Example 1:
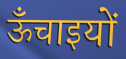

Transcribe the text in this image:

ऊँचाइयों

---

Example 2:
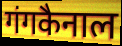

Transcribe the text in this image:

गंगकैनाल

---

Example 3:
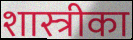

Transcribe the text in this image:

शास्त्रीका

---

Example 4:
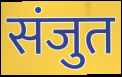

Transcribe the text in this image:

संजुत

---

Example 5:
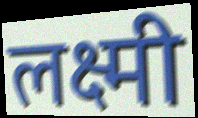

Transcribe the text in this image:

लक्ष्‍मी